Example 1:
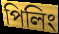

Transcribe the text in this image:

পিলিং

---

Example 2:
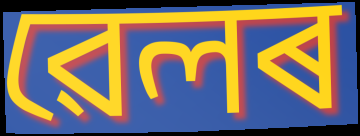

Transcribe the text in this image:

ৱেলৰ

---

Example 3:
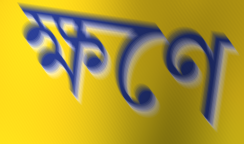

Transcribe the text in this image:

ক্ষণে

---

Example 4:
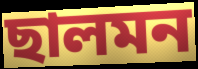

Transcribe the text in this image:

ছালমন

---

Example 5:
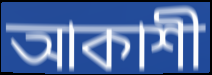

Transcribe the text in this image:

আকাশী